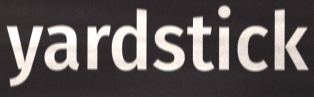
yardstick